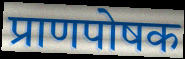
प्राणपोषक